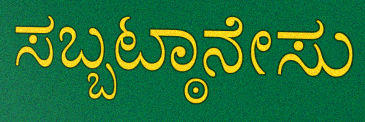
ಸಬ್ಬಟ್ಠಾನೇಸು